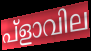
പ്ളാവില